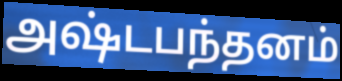
அஷ்டபந்தனம்